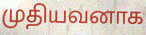
முதியவனாக